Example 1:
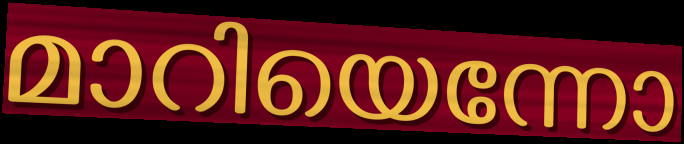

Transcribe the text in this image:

മാറിയെന്നോ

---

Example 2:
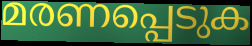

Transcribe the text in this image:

മരണപ്പെടുക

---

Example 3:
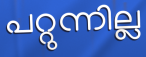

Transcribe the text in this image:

പറ്റുന്നില്ല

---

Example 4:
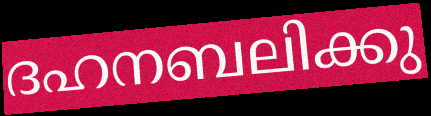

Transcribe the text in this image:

ദഹനബലിക്കു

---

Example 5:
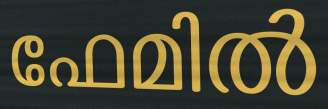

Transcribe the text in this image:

ഫേമിൽ